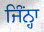
ਜਿੰਂਨ੍ਹਾ